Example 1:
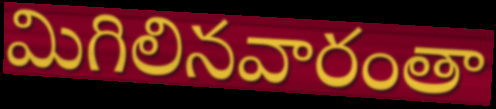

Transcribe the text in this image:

మిగిలినవారంతా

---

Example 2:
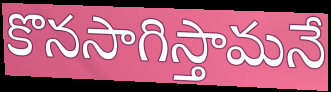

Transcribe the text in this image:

కొనసాగిస్తామనే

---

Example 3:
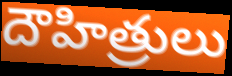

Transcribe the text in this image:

దౌహిత్రులు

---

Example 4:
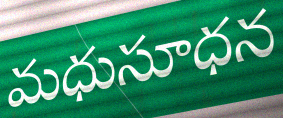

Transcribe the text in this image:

మధుసూధన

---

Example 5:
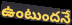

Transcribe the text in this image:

ఉంటుందనే